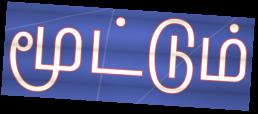
மூட்டும்